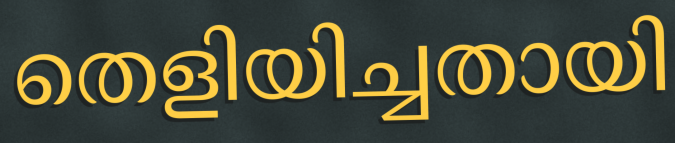
തെളിയിച്ചതായി